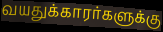
வயதுக்காரர்களுக்கு